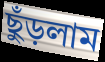
ছুঁড়লাম